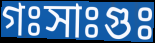
গঃসাঃগুঃ